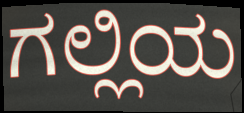
ಗಲ್ಲಿಯ